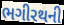
ભગીરથની